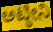
ಅಟ್ಠೀನಿ